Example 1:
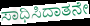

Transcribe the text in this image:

ಸಾಧಿಸಿದಾತನೇ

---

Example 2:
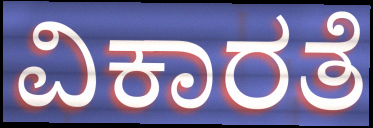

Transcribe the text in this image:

ವಿಕಾರತೆ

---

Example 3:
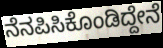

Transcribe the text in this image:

ನೆನಪಿಸಿಕೊಂಡಿದ್ದೇನೆ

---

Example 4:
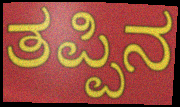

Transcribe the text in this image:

ತಪ್ಪಿನ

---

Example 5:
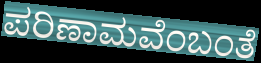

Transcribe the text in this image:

ಪರಿಣಾಮವೆಂಬಂತೆ